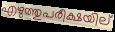
എഴുത്തുപരീക്ഷയില്